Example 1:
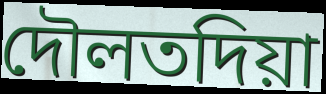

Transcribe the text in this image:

দৌলতদিয়া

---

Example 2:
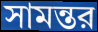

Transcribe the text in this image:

সামন্তর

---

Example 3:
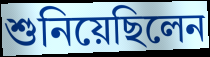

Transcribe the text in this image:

শুনিয়েছিলেন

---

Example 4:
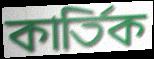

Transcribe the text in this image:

কার্তিক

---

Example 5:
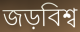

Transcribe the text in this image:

জড়বিশ্ব